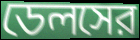
ডেলসের